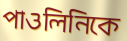
পাওলিনিকে